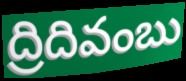
ద్రిదివంబు